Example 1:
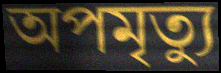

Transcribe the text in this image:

অপমৃত্যু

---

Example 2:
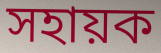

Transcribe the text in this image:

সহায়ক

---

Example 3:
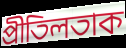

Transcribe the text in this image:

প্ৰীতিলতাক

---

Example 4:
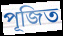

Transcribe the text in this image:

পূজিত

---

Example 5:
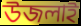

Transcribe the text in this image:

উজলাই